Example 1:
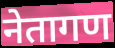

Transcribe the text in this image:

नेतागण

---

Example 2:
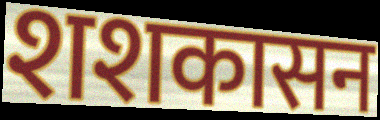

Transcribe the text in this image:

शशकासन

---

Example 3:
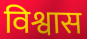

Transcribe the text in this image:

विश्वास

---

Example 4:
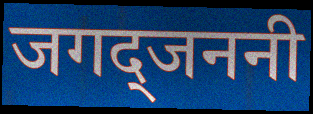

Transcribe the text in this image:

जगद्जननी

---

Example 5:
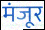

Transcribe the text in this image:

मंजूर